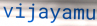
vijayamu